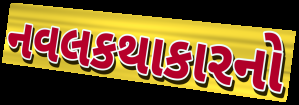
નવલકથાકારનો